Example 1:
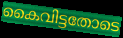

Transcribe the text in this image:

കൈവിട്ടതോടെ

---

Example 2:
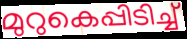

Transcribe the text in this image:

മുറുകെപ്പിടിച്ച്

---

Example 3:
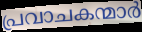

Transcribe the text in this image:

പ്രവാചകന്മാർ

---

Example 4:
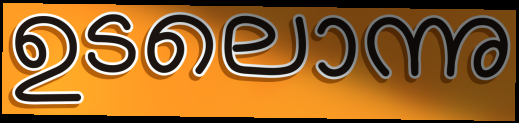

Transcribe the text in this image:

ഉടലൊന്നു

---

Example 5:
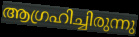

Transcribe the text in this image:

ആഗ്രഹിച്ചിരുന്നു